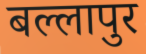
बल्लापुर